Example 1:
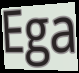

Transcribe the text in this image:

Ega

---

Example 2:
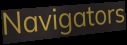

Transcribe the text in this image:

Navigators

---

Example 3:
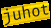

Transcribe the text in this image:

juhot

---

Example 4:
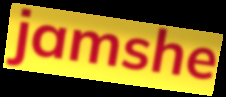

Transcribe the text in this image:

jamshe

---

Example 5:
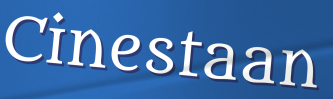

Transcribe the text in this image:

Cinestaan